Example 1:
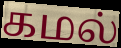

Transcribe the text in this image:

கமல்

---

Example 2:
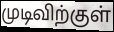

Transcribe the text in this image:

முடிவிற்குள்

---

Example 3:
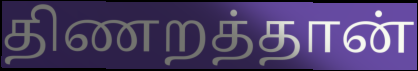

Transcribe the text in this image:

திணறத்தான்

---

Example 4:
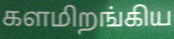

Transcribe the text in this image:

களமிறங்கிய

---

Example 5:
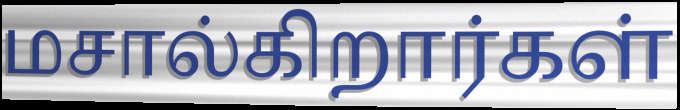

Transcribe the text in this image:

மசால்கிறார்கள்